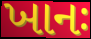
ખાનઃ